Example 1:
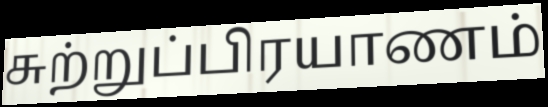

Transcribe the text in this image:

சுற்றுப்பிரயாணம்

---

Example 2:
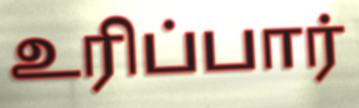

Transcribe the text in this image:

உரிப்பார்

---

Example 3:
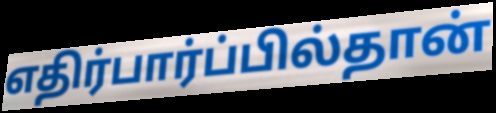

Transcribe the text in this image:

எதிர்பார்ப்பில்தான்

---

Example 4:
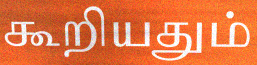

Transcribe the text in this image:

கூறியதும்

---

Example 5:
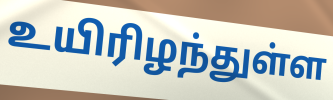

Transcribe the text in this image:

உயிரிழந்துள்ள